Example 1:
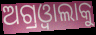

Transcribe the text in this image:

ଅଗ୍ରଓ୍ୱାଲାକୁ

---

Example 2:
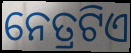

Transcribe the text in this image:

ନେତ୍ରଟିଏ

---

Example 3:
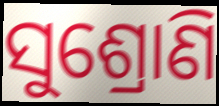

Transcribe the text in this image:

ସୁଶ୍ରୋଣି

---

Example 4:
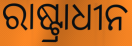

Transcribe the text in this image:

ରାଷ୍ଟ୍ରାଧୀନ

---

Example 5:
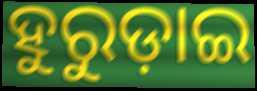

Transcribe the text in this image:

ହୁରୁଡ଼ାଇ